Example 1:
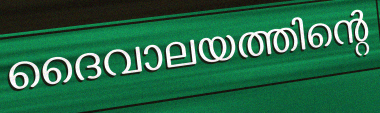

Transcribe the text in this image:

ദൈവാലയത്തിന്റെ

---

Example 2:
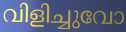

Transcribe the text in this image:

വിളിച്ചുവോ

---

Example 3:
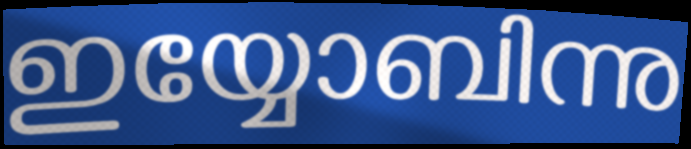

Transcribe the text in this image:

ഇയ്യോബിന്നു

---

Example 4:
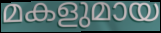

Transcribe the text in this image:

മകളുമായ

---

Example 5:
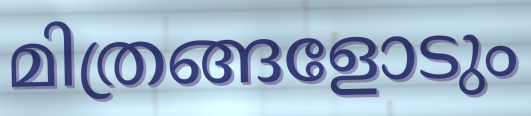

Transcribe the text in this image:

മിത്രങ്ങളോടും